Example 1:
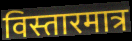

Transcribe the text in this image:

विस्तारमात्र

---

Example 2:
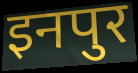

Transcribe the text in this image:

इनपुर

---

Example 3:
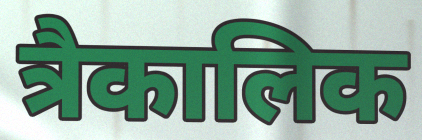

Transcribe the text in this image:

त्रैकालिक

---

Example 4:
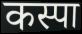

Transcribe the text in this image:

कस्पा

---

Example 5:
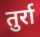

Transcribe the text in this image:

तुर्रा